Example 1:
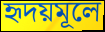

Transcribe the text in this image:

হৃদয়মূলে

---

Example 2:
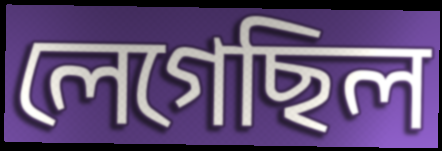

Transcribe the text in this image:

লেগেছিল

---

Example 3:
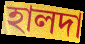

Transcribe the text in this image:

হালদা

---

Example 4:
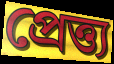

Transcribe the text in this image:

প্রেত্ত্য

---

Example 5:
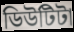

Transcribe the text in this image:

ডিউটিটা